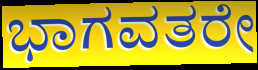
ಭಾಗವತರೇ